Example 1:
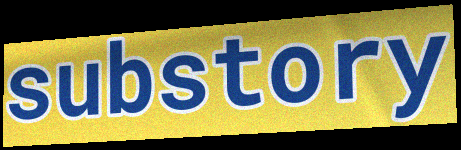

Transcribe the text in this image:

substory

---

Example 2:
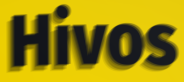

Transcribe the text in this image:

Hivos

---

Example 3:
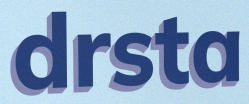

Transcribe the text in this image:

drsta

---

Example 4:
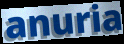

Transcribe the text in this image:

anuria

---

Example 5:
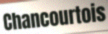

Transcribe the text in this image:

Chancourtois